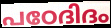
പഠേദിദം